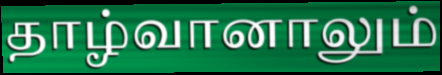
தாழ்வானாலும்